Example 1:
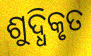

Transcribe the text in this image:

ଶୁଦ୍ଧିକୃତ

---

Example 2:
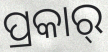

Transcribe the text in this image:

ପ୍ରକାର୍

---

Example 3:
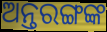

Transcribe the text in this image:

ଅନ୍ତରଙ୍ଗଙ୍କ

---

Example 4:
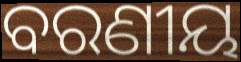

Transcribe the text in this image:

ବରଣୀୟ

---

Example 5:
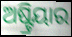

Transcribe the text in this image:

ଅଷ୍ଟ୍ରିୟାର